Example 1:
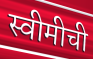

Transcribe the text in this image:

स्वीमीची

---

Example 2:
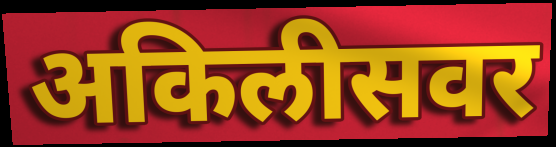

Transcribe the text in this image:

अकिलीसवर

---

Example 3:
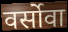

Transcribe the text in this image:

वर्सोवा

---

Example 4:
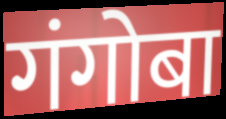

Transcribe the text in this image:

गंगोबा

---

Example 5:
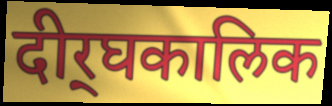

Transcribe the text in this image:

दीर्घकालिक